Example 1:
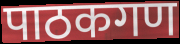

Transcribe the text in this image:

पाठकगण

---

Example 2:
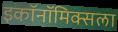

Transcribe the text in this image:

इकॉनॉमिक्सला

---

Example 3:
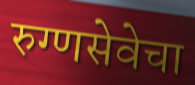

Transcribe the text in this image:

रुग्णसेवेचा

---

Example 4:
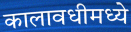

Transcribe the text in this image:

कालावधीमध्ये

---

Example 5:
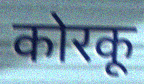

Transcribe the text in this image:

कोरकू